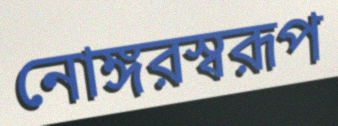
নোঙ্গরস্বরূপ